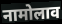
नामोलाव